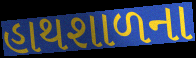
હાથશાળના